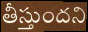
తీస్తుందని